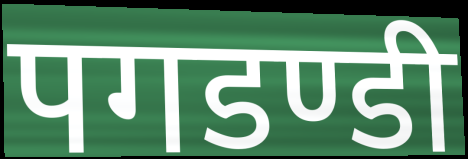
पगडण्डी